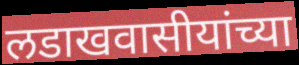
लडाखवासीयांच्या